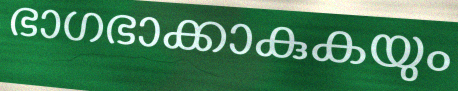
ഭാഗഭാക്കാകുകയും